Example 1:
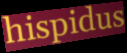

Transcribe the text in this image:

hispidus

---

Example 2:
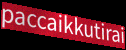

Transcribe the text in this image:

paccaikkutirai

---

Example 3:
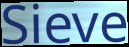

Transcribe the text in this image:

Sieve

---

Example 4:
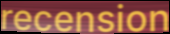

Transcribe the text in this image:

recension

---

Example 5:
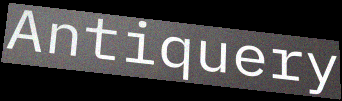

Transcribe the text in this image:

Antiquery